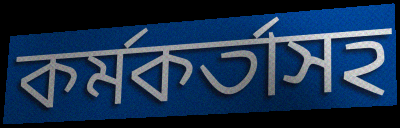
কর্মকর্তাসহ